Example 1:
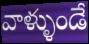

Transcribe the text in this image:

వాళ్ళుండే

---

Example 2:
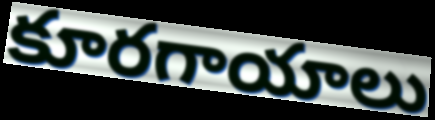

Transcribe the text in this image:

కూరగాయాలు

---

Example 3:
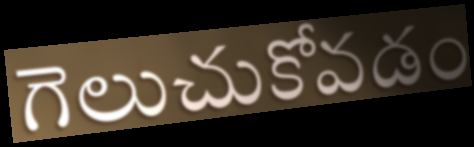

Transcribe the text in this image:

గెలుచుకోవడం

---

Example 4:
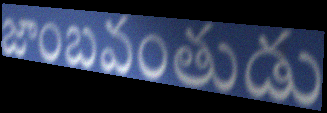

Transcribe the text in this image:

జాంబవంతుడు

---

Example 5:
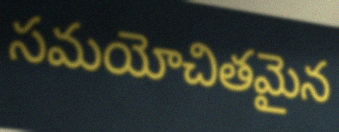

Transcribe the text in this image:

సమయోచితమైన